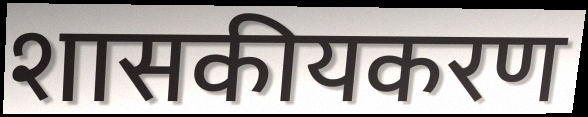
शासकीयकरण